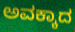
ಅವಕ್ಕಾದ